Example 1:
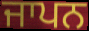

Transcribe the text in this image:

ਜਾਪਨ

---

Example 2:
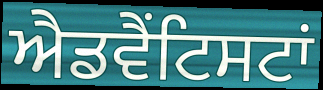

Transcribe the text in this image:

ਐਡਵੈਂਟਿਸਟਾਂ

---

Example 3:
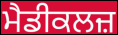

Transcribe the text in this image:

ਮੈਡੀਕਲਜ਼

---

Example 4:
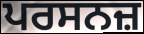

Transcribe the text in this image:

ਪਰਸਨਜ਼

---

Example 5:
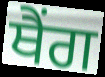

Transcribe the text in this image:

ਥੈਂਗ